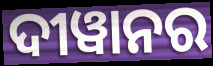
ଦୀୱାନର